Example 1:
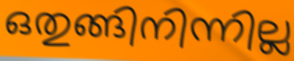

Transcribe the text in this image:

ഒതുങ്ങിനിന്നില്ല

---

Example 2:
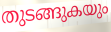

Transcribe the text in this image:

തുടങ്ങുകയും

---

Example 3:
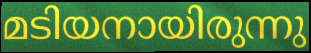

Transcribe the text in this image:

മടിയനായിരുന്നു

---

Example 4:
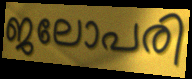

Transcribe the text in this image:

ജലോപരി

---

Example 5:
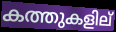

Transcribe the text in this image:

കത്തുകളില്